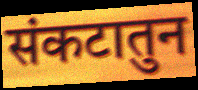
संकटातुन